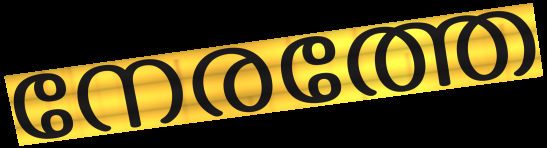
നേരത്തേ